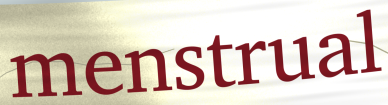
menstrual